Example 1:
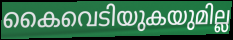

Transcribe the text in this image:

കൈവെടിയുകയുമില്ല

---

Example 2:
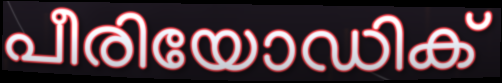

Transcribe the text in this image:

പീരിയോഡിക്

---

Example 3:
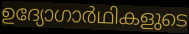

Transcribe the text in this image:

ഉദ്യോഗാർഥികളുടെ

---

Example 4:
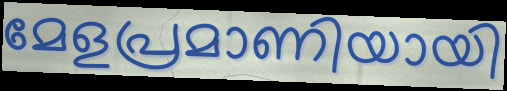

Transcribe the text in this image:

മേളപ്രമാണിയായി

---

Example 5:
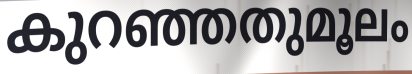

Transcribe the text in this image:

കുറഞ്ഞതുമൂലം